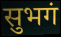
सुभगं